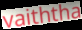
vaiththa